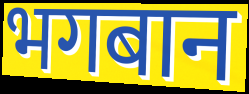
भगबान